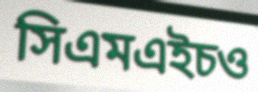
সিএমএইচও